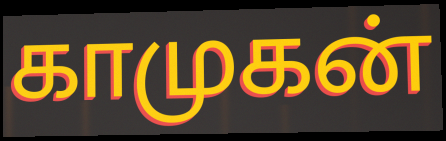
காமுகன்